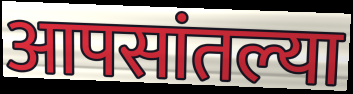
आपसांतल्या